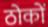
ठोकों